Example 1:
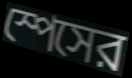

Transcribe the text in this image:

স্পেসের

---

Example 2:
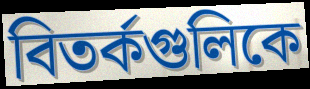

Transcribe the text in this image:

বিতর্কগুলিকে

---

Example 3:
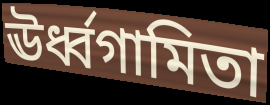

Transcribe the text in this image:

ঊর্ধ্বগামিতা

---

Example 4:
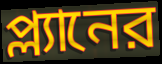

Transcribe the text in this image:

প্ল্যানের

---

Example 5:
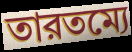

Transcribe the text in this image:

তারতম্যে